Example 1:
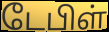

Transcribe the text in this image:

டேபிள்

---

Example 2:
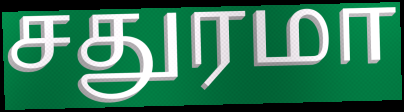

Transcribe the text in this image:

சதுரமா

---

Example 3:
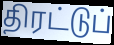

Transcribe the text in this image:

திரட்டுப்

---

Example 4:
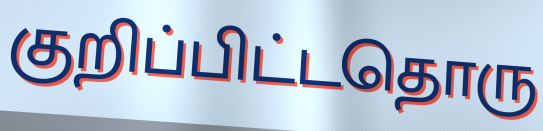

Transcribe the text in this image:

குறிப்பிட்டதொரு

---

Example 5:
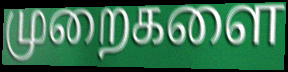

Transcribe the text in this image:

முறைகளை